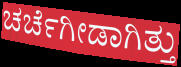
ಚರ್ಚೆಗೀಡಾಗಿತ್ತು